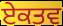
ਏਕਤਵ